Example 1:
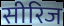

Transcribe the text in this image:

सीरिज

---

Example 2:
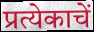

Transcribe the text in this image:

प्रत्येकाचें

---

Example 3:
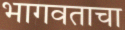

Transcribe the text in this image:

भागवताचा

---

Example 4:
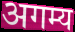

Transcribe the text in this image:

अगम्य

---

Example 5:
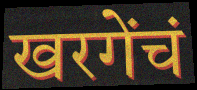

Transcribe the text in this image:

खरगेंचं